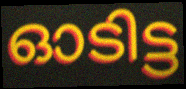
ഓടിട്ട